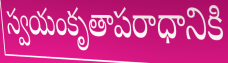
స్వయంకృతాపరాధానికి